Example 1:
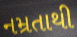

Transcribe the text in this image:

નમ્રતાથી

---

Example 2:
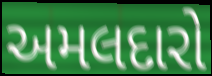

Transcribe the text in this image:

અમલદારો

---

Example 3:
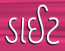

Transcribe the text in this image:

ડાઈટ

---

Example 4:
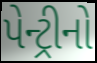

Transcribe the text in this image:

પેન્ટ્રીનો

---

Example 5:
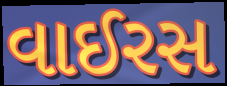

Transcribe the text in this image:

વાઈરસ